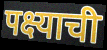
पक्ष्याची